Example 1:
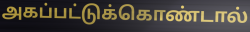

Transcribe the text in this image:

அகப்பட்டுக்கொண்டால்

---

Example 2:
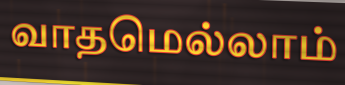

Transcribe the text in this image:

வாதமெல்லாம்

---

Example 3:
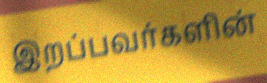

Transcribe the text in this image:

இறப்பவர்களின்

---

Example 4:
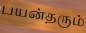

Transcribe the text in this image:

பயன்தரும்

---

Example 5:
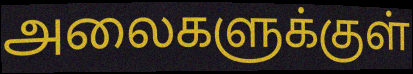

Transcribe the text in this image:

அலைகளுக்குள்